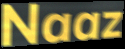
Naaz